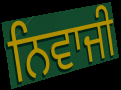
ਨਿਵਾਜੀ